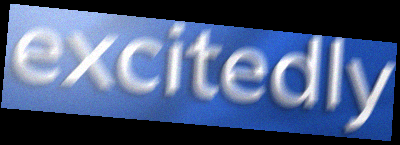
excitedly